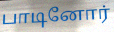
பாடினோர்